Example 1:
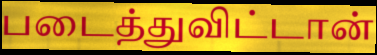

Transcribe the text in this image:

படைத்துவிட்டான்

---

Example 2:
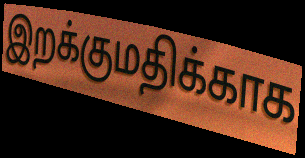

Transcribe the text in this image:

இறக்குமதிக்காக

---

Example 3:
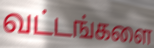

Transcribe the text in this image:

வட்டங்களை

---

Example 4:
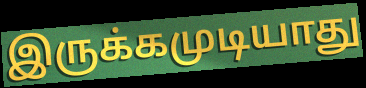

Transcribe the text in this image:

இருக்கமுடியாது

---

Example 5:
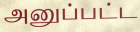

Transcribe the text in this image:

அனுப்பட்ட